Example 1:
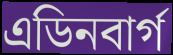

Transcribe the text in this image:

এডিনবাৰ্গ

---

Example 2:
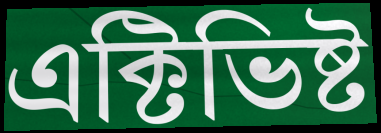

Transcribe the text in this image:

এক্টিভিষ্ট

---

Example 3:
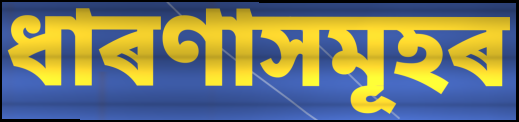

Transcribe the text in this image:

ধাৰণাসমূহৰ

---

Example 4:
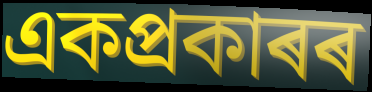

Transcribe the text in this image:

একপ্ৰকাৰৰ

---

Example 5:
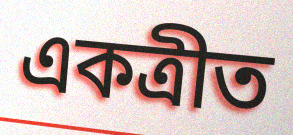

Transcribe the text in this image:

একত্ৰীত